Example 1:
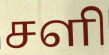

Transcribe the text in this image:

சளி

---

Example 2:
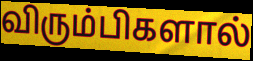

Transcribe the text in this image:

விரும்பிகளால்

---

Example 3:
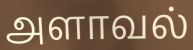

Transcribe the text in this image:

அளாவல்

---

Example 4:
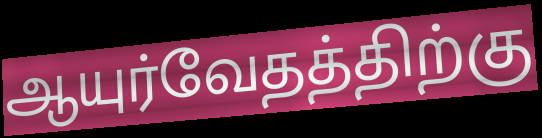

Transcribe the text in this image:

ஆயுர்வேதத்திற்கு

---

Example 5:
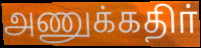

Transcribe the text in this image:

அணுக்கதிர்